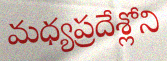
మధ్యప్రదేశ్లోని